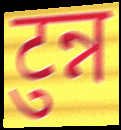
टुन्न